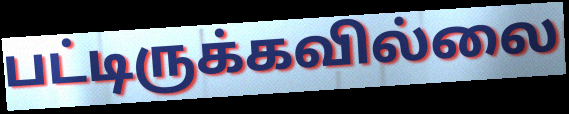
பட்டிருக்கவில்லை